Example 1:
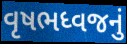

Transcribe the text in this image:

વૃષભધ્વજનું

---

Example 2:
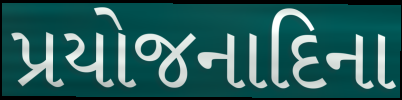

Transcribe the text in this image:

પ્રયોજનાદિના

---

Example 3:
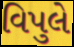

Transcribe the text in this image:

વિપુલે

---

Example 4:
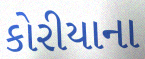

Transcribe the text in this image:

કોરીયાના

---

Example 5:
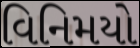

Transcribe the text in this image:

વિનિમયો